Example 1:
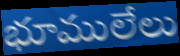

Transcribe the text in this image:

భూములేలు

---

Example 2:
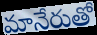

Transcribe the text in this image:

మానేరుతో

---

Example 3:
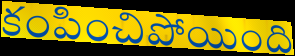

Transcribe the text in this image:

కంపించిపోయింది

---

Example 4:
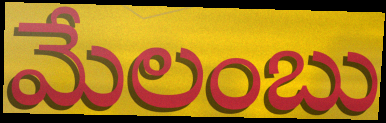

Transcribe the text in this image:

మేలంబు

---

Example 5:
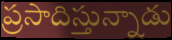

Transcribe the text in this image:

ప్రసాదిస్తున్నాడు